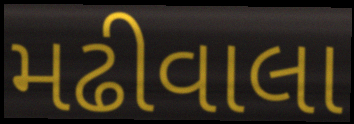
મઢીવાલા